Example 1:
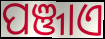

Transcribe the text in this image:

ପଞ୍ଜାଏ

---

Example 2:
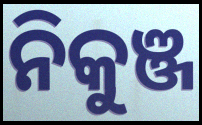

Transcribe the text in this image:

ନିକୁଞ୍ଜ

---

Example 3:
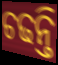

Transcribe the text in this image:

ଚଢନ୍ତି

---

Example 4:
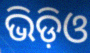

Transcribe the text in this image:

ଭିଡ଼ିଓ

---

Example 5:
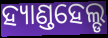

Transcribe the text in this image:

ହ୍ୟାଣ୍ଡହେଲ୍ଡ